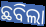
ଛବିଲା